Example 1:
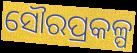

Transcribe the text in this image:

ସୌରପ୍ରକଳ୍ପ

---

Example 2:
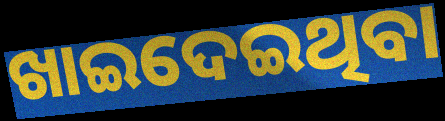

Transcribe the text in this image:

ଖାଇଦେଇଥିବା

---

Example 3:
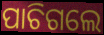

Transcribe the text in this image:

ପାଚିଗଲେ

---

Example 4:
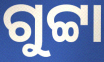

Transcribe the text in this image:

ଗୁଟ୍ଟା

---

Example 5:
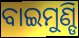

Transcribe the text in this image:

ବାଇମୁଣ୍ଡି